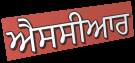
ਐਸਸੀਆਰ